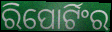
ରିପୋର୍ଟିଂର